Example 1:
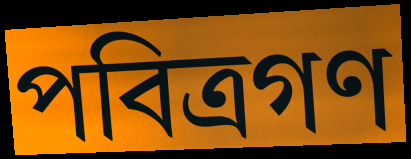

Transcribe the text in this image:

পবিত্রগণ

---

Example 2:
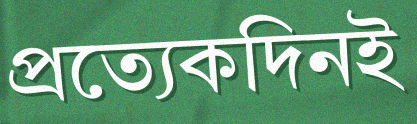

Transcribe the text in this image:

প্রত্যেকদিনই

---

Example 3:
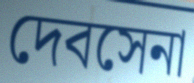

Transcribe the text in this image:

দেবসেনা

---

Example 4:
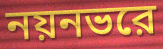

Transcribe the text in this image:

নয়নভরে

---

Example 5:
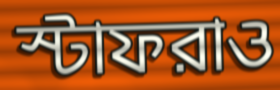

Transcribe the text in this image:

স্টাফরাও